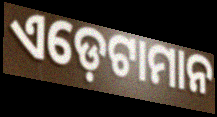
ଏଡ଼େଟାମାନ